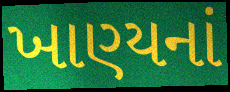
ખાણ્યનાં